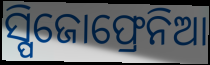
ସ୍ପିଜୋଫ୍ରେନିଆ